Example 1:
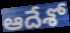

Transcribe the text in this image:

ఆదేశో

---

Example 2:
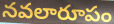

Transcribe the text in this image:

నవలారూపం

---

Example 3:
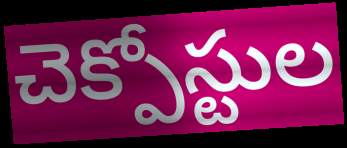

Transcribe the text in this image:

చెక్పోస్టుల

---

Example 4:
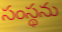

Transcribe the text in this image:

సంస్థను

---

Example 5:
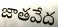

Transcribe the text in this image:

జాతవేద